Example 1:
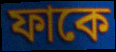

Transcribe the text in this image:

ফাকে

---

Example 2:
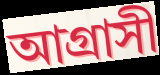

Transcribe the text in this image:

আগ্ৰাসী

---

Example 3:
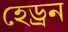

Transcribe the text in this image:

হেড্ৰন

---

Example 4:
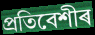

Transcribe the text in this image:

প্ৰতিবেশীৰ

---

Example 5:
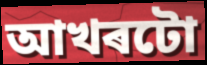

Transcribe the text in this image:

আখৰটো